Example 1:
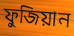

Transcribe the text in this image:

ফুজিয়ান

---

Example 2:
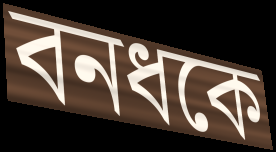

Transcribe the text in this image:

বনধকে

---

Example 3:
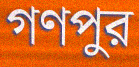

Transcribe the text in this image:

গণপুর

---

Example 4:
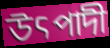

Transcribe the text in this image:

উৎপাদী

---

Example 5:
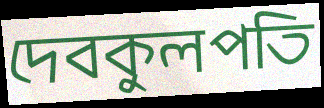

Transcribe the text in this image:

দেবকুলপতি